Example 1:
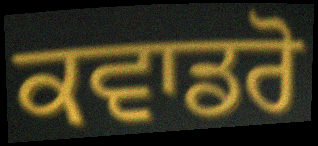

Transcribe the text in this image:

ਕਵਾਡਰੋ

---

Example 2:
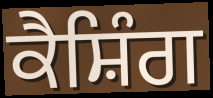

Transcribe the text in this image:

ਕੈਸ਼ਿੰਗ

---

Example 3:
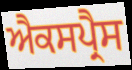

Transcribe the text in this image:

ਐਕਸਪ੍ਰੈਸ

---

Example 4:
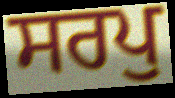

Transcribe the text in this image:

ਸਰਪੁ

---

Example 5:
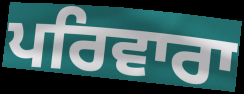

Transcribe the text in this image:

ਪਰਿਵਾਰਾ